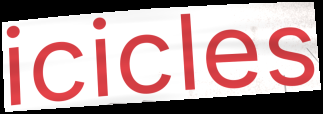
icicles